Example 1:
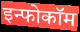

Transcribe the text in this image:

इन्फोकॉम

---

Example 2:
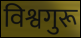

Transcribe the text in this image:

विश्वगुरू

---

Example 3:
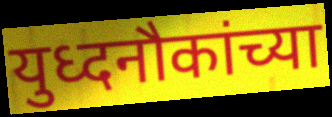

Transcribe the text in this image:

युध्दनौकांच्या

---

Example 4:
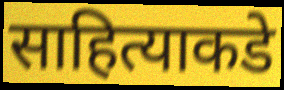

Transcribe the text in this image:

साहित्याकडे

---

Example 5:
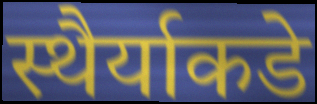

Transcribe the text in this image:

स्थैर्याकडे